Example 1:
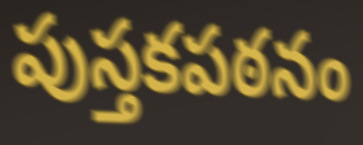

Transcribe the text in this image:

పుస్తకపఠనం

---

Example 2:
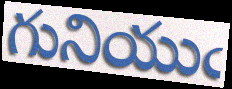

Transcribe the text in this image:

గునియుఁ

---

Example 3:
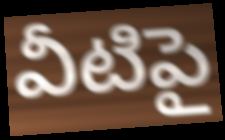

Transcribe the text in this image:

వీటిపై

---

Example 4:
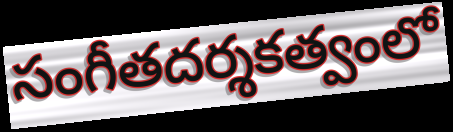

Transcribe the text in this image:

సంగీతదర్శకత్వంలో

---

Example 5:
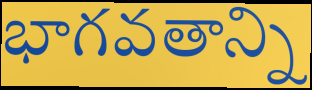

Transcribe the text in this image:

భాగవతాన్ని